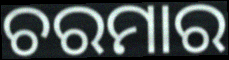
ଚରମାର